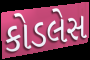
કોડલેસ